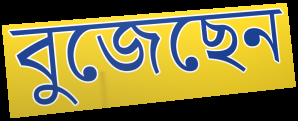
বুজেছেন